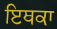
ਇਥਕਾ